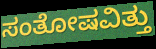
ಸಂತೋಷವಿತ್ತು